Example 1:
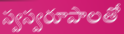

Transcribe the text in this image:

స్వస్వరూపాలతో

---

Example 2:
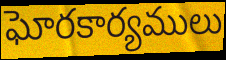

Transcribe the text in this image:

ఘోరకార్యములు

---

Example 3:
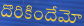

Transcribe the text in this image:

దొరికిందేమో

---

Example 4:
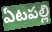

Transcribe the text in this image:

ఏటపల్లి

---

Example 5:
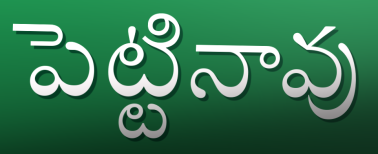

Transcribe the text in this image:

పెట్టినావు